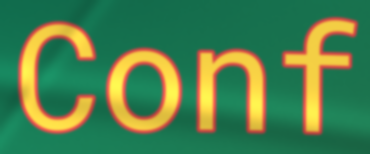
Conf